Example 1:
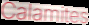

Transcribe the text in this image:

Calamites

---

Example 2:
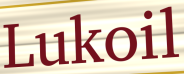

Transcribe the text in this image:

Lukoil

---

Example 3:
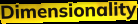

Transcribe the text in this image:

Dimensionality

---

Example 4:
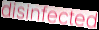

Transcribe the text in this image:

disinfected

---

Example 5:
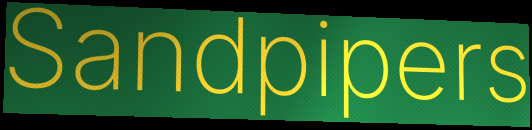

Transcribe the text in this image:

Sandpipers